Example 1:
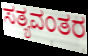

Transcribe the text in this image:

ಸತ್ಯವಂತರ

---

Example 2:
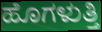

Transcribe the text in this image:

ಹೊಗಳುತ್ತಿ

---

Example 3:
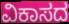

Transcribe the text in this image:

ವಿಕಾಸದ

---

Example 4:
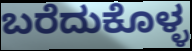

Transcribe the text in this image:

ಬರೆದುಕೊಳ್ಳ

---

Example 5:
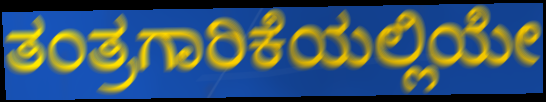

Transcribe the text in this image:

ತಂತ್ರಗಾರಿಕೆಯಲ್ಲಿಯೇ